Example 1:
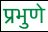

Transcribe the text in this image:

प्रभुणे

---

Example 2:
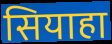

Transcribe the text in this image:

सियाहा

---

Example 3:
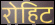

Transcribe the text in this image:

रोहिट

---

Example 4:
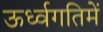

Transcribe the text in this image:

ऊर्ध्वगतिमें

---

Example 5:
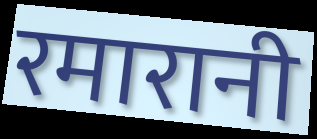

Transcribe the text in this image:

रमारानी